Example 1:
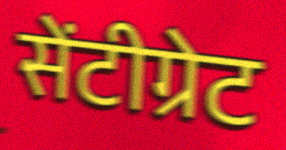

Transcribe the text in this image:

सेंटीग्रेट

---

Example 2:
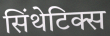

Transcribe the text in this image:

सिंथेटिक्स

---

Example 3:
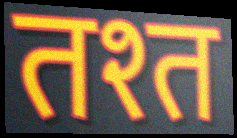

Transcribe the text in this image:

तश्त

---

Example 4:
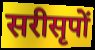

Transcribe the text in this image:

सरीसृपों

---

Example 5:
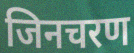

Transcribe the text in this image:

जिनचरण